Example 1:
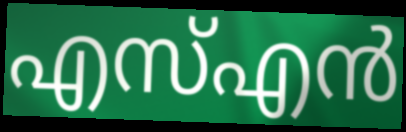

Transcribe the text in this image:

എസ്എൻ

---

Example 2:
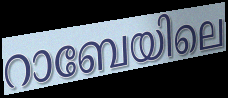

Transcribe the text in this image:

റാബേയിലെ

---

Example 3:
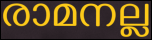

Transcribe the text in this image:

രാമനല്ല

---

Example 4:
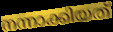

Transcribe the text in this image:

നന്നാക്കിയത്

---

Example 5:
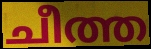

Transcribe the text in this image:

ചീത്ത